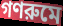
গণরুমে